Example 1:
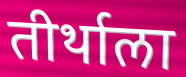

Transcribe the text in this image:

तीर्थाला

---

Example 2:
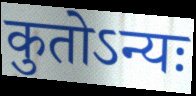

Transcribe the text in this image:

कुतोऽन्यः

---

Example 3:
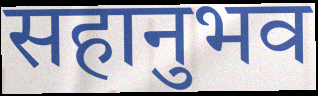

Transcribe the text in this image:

सहानुभव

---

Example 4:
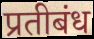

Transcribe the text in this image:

प्रतीबंध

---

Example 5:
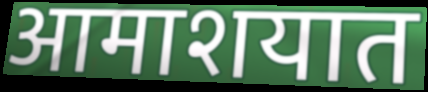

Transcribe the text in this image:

आमाशयात